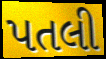
પતલી